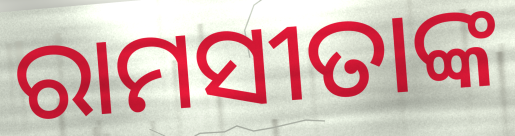
ରାମସୀତାଙ୍କ